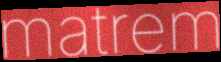
matrem